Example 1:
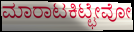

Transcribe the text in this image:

ಮಾರಾಟಕಿಟ್ಟೇವೋ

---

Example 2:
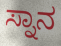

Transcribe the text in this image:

ಸ್ನಾನ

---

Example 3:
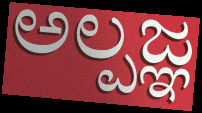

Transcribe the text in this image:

ಅಲ್ಪಜ್ಞ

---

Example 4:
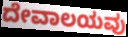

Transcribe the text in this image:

ದೇವಾಲಯವು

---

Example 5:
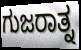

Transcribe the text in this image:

ಗುಜರಾತ್ನ